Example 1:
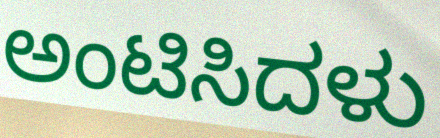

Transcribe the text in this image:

ಅಂಟಿಸಿದಳು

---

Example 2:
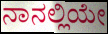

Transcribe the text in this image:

ನಾನಲ್ಲಿಯೇ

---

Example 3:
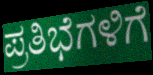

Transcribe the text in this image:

ಪ್ರತಿಭೆಗಳಿಗೆ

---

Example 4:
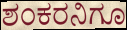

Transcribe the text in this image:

ಶಂಕರನಿಗೂ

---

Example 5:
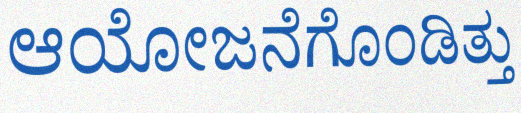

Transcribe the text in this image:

ಆಯೋಜನೆಗೊಂಡಿತ್ತು